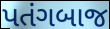
પતંગબાજ